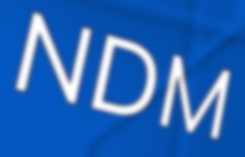
NDM